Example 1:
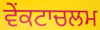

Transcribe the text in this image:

ਵੇਂਕਟਾਚਲਮ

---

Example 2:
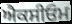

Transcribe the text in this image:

ਐਕਸੀਓਮ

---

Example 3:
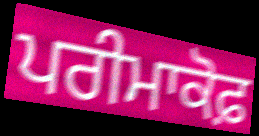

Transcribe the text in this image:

ਪਰੀਮਾਕੋਫ਼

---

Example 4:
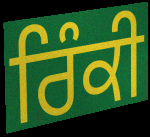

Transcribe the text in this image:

ਰਿੰਕੀ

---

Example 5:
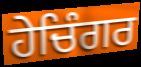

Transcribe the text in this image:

ਹੇਚਿੰਗਰ